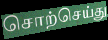
சொற்செய்து